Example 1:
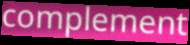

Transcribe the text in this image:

complement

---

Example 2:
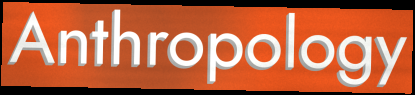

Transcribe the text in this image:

Anthropology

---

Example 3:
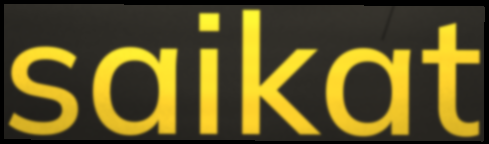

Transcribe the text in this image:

saikat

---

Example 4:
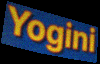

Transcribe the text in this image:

Yogini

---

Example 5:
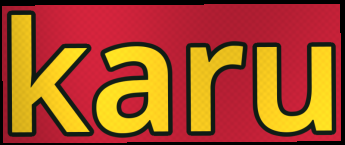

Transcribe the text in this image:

karu